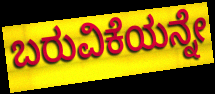
ಬರುವಿಕೆಯನ್ನೇ